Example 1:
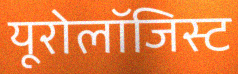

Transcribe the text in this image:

यूरोलॉजिस्ट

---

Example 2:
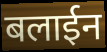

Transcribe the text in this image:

बलाईन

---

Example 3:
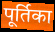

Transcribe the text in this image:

पूर्तिका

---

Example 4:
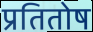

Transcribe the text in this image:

प्रतितोष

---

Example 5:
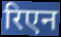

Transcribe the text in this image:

रिएन